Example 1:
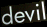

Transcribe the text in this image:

devil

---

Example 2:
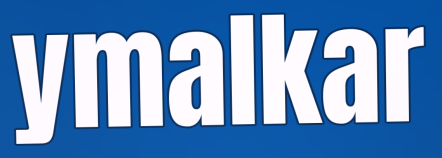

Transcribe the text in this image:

ymalkar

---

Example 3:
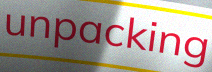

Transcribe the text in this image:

unpacking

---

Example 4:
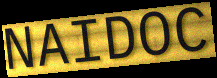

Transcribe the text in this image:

NAIDOC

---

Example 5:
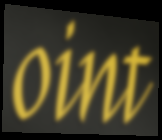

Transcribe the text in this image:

oint